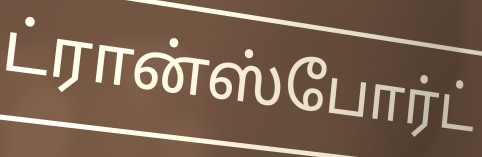
ட்ரான்ஸ்போர்ட்